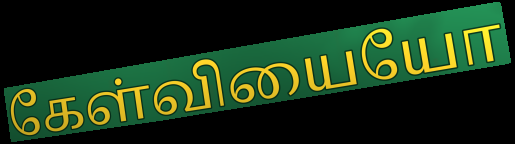
கேள்வியையோ